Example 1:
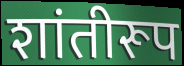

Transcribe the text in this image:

शांतीरूप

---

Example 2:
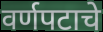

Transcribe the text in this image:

वर्णपटाचे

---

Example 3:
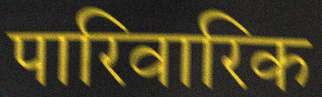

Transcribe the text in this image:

पारिवारिक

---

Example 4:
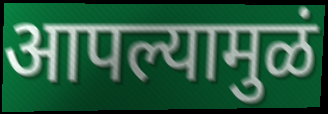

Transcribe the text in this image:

आपल्यामुळं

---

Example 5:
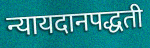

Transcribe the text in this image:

न्यायदानपद्धती